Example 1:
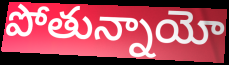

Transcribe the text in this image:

పోతున్నాయో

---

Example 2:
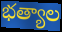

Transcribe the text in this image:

భత్యాల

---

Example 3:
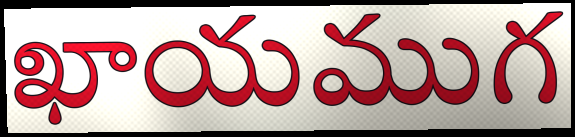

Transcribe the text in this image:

ఖాయముగ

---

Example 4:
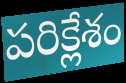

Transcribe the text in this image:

పరిక్లేశం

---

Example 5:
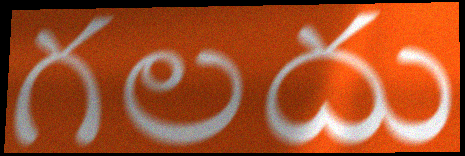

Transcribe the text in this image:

గలదు